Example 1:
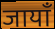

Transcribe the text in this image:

जायाँ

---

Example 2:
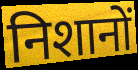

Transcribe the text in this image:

निशानों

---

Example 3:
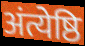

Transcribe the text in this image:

अंत्येष्ठि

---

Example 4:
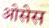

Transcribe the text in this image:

ओसेस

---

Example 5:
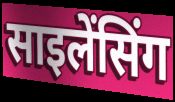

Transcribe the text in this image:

साइलेंसिंग